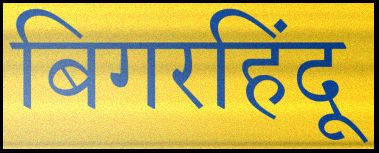
बिगरहिंदू